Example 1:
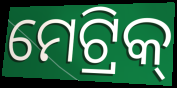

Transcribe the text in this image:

ମେଟ୍ରିକ୍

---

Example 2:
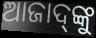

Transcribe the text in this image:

ଆଜାଦ୍‌ଙ୍କୁ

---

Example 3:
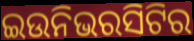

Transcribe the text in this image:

ଇଉନିଭରସିଟିର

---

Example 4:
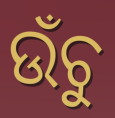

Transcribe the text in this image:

ଉଁଚୁ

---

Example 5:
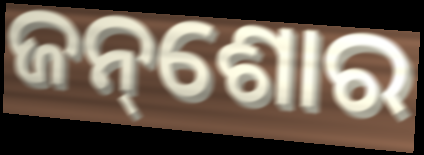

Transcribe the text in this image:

ଜନ୍‌ଶୋର